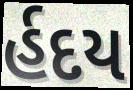
ર્હદય